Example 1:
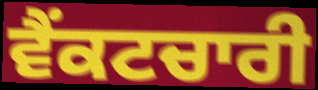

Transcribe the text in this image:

ਵੈਂਕਟਚਾਰੀ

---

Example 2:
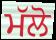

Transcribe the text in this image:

ਮੱਲੋ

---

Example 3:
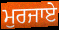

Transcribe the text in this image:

ਮੁਰਜਾਏ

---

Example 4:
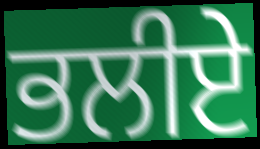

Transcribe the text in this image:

ਭਲੀਏ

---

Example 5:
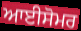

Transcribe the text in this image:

ਆਈਸੋਮਰ